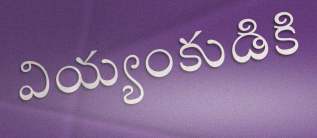
వియ్యంకుడికి